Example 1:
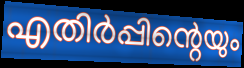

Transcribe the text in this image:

എതിർപ്പിന്റെയും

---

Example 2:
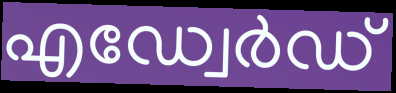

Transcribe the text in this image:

എഡ്വേർഡ്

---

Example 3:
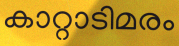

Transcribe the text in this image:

കാറ്റാടിമരം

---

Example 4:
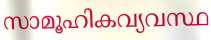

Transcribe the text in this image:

സാമൂഹികവ്യവസ്ഥ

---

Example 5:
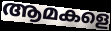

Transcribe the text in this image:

ആമകളെ